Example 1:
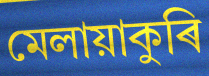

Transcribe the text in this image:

মেলায়াকুৰি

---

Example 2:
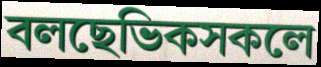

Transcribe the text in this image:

বলছেভিকসকলে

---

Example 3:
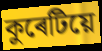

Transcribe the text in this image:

কুৰেটিয়ে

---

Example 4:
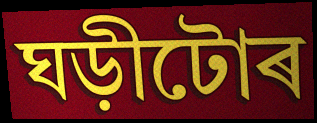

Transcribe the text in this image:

ঘড়ীটোৰ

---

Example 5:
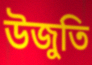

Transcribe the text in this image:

উজুতি